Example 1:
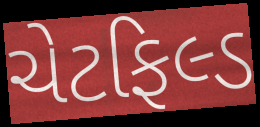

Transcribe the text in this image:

ચેટફિલ્ડ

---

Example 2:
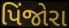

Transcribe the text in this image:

પિંજોરા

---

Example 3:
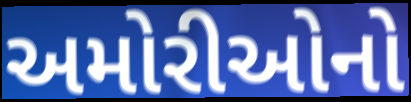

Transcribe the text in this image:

અમોરીઓનો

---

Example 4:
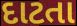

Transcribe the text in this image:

દાટતા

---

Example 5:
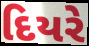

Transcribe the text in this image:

દિયરે